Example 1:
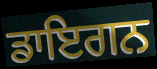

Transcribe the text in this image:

ਡਾਇਗਨ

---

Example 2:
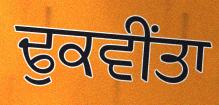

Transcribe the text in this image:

ਢੁਕਵੀਂਤਾ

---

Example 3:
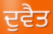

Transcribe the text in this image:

ਦੁਵੈਤ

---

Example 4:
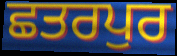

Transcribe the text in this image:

ਛਤਰਪੁਰ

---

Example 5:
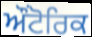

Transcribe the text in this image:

ਔਂਟੋਰਿਕ